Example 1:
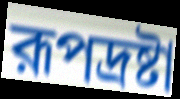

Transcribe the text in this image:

রূপদ্রষ্টা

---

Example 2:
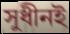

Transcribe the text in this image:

সুধীনই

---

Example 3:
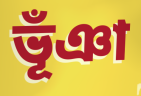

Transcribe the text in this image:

ভূঁঞা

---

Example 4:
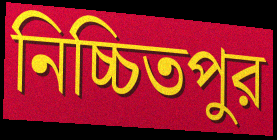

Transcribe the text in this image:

নিচ্চিতপুর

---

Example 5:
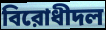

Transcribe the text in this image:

বিরোধীদল